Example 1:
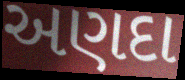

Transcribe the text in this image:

અણદા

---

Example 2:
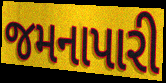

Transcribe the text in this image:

જમનાપારી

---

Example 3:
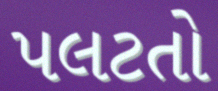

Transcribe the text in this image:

પલટતો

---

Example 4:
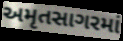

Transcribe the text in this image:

અમૃતસાગરમાં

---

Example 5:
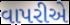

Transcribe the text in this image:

વાપરીએ